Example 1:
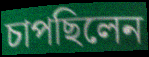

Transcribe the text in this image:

চাপছিলেন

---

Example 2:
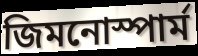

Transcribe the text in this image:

জিমনোস্পার্ম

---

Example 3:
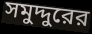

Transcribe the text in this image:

সমুদ্দুরের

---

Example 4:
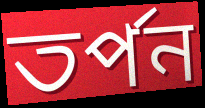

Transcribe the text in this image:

তর্পন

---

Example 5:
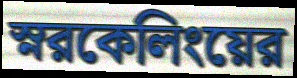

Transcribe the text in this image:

স্নরকেলিংয়ের